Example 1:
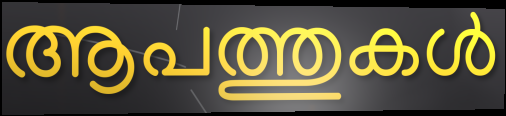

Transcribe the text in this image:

ആപത്തുകൾ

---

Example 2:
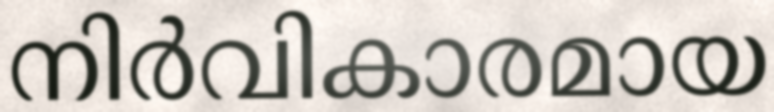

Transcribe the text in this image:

നിർവികാരമായ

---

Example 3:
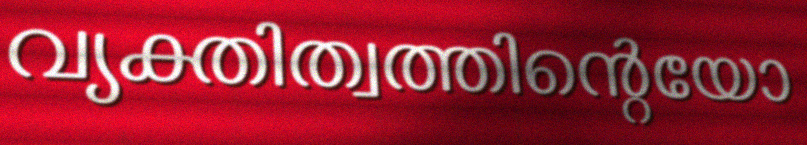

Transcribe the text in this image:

വ്യക്തിത്വത്തിന്റെയോ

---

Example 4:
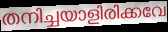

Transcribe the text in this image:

തനിച്ചയാളിരിക്കവേ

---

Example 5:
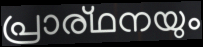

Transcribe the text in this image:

പ്രാര്ഥനയും